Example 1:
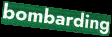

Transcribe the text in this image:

bombarding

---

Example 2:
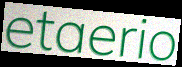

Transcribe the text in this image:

etaerio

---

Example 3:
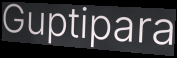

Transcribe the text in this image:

Guptipara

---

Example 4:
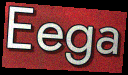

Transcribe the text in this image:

Eega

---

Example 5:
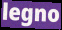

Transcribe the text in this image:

legno